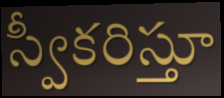
స్వీకరిస్తూ